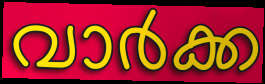
വാർക്ക